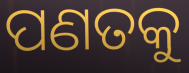
ପଣତକୁ